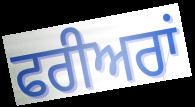
ਫਰੀਅਰਾਂ